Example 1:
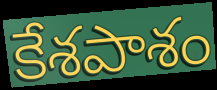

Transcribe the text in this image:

కేశపాశం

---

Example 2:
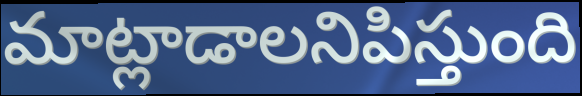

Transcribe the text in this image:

మాట్లాడాలనిపిస్తుంది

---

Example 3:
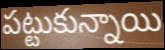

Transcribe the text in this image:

పట్టుకున్నాయి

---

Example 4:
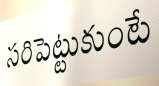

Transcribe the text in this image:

సరిపెట్టుకుంటే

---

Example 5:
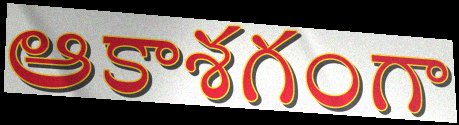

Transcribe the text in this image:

ఆకాశగంగా